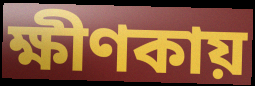
ক্ষীণকায়